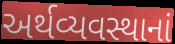
અર્થવ્યવસ્થાનાં